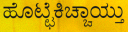
ಹೊಟ್ಟೆಕಿಚ್ಚಾಯ್ತು